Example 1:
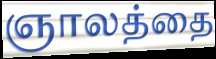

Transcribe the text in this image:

ஞாலத்தை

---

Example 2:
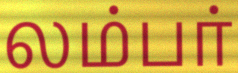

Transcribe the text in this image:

லம்பர்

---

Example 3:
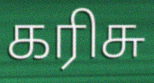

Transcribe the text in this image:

கரிசு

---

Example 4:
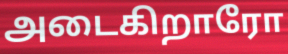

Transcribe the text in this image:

அடைகிறாரோ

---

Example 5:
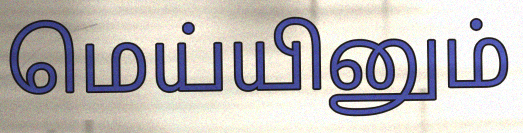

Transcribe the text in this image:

மெய்யினும்